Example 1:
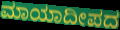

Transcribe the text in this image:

ಮಾಯಾದೀಪದ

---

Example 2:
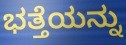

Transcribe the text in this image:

ಭತ್ತೆಯನ್ನು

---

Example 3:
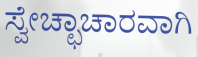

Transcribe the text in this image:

ಸ್ವೇಚ್ಛಾಚಾರವಾಗಿ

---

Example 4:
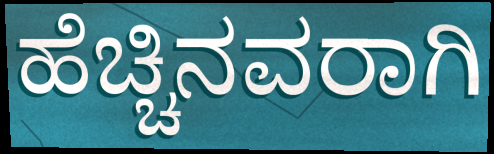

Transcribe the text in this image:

ಹೆಚ್ಚಿನವರಾಗಿ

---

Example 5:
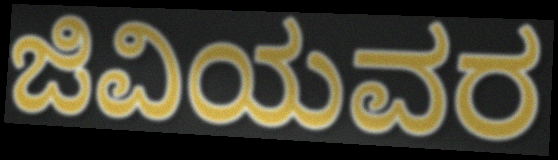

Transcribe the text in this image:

ಜಿವಿಯವರ